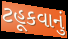
ટહૂકવાનું